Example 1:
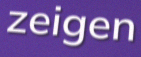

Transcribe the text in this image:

zeigen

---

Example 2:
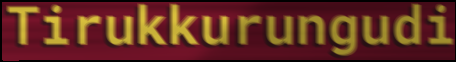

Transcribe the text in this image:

Tirukkurungudi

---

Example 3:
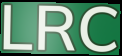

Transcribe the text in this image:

LRC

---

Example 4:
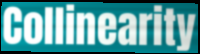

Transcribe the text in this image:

Collinearity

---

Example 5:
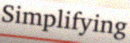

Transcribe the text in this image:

Simplifying